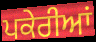
ਪਕੇਰੀਆਂ